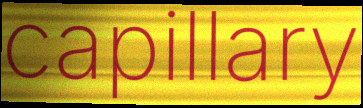
capillary